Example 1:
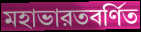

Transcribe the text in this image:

মহাভারতবর্ণিত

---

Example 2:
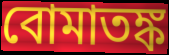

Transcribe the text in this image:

বোমাতঙ্ক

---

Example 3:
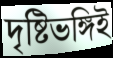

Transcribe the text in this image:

দৃষ্টিভঙ্গিই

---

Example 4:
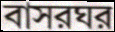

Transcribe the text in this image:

বাসরঘর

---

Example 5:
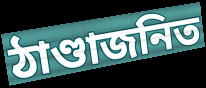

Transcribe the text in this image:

ঠাণ্ডাজনিত